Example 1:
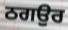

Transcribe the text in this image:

ਠਗਉਰ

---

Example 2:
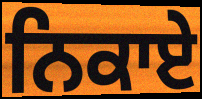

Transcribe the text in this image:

ਨਿਕਾਏ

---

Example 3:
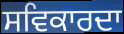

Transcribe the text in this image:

ਸਵਿਕਾਰਦਾ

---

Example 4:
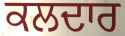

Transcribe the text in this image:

ਕਲਦਾਰ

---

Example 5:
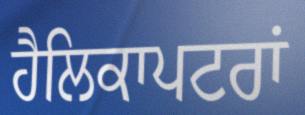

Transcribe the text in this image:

ਹੈਲਿਕਾਪਟਰਾਂ